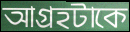
আগ্রহটাকে